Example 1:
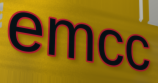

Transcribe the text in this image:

emcc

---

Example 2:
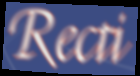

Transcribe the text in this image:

Recti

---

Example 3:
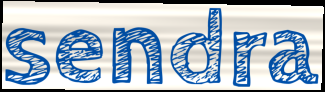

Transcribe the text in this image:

sendra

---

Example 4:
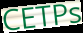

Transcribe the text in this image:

CETPs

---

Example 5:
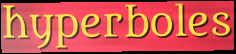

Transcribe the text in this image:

hyperboles